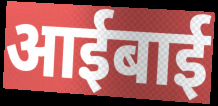
आईबाई